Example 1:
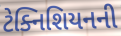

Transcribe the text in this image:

ટેક્નિશિયનની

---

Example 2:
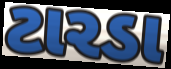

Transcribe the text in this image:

ટારડા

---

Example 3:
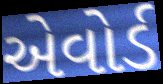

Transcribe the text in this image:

એવોર્ડ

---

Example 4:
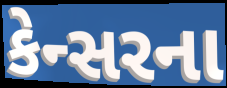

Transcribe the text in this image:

કેન્સરના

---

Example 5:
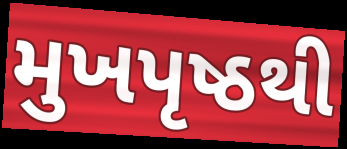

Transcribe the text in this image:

મુખપૃષ્ઠથી